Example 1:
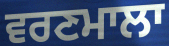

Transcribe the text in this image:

ਵਰਣਮਾਲਾ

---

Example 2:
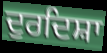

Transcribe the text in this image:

ਦੁਰਦਿਸ਼ਾ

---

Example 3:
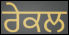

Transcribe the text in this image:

ਰੇਕਲ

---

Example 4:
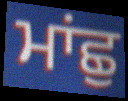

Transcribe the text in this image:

ਮਾਂਛੁ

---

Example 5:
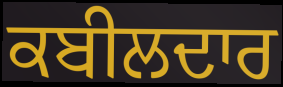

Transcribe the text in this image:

ਕਬੀਲਦਾਰ